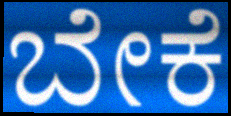
ಬೇಕೆ